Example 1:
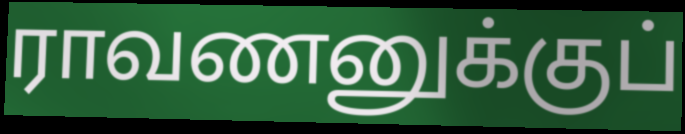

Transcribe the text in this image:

ராவணனுக்குப்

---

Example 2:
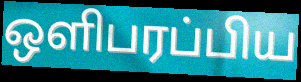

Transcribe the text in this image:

ஒளிபரப்பிய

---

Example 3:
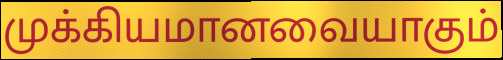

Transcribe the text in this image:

முக்கியமானவையாகும்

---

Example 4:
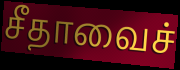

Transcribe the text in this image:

சீதாவைச்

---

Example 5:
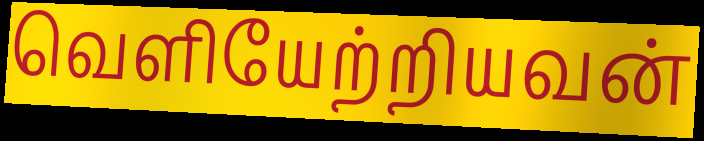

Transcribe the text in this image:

வெளியேற்றியவன்